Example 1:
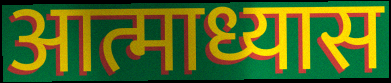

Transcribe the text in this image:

आत्माध्यास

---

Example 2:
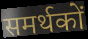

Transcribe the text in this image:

समर्थकों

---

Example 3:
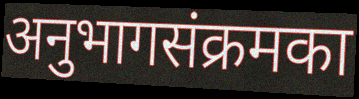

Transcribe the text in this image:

अनुभागसंक्रमका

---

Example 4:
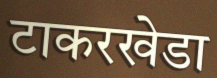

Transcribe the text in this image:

टाकरखेडा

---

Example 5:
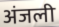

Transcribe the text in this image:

अंजली